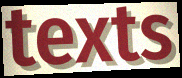
texts